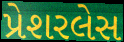
પ્રેશરલેસ